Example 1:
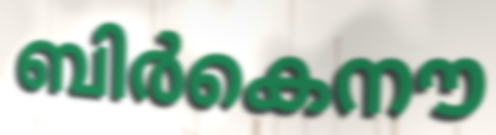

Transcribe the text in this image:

ബിർകെനൗ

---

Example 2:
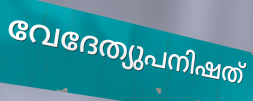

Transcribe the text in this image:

വേദേത്യുപനിഷത്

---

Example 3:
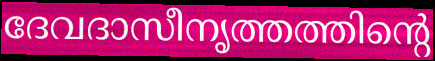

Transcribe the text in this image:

ദേവദാസീനൃത്തത്തിന്റെ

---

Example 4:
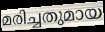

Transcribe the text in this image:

മരിച്ചതുമായ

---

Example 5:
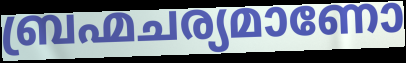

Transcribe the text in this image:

ബ്രഹ്മചര്യമാണോ